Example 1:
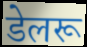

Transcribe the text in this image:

डेलरू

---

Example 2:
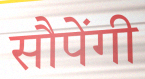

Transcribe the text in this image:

सौपेंगी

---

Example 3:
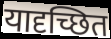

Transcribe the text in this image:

यादृच्छित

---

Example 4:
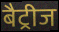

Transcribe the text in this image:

बैट्रीज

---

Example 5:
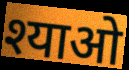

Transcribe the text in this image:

श्याओ